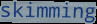
skimming